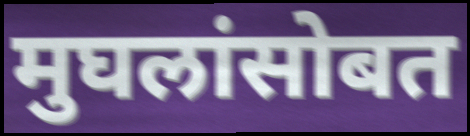
मुघलांसोबत